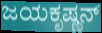
ಜಯಕೃಷ್ಣನ್